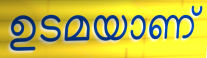
ഉടമയാണ്